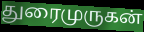
துரைமுருகன்